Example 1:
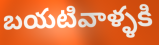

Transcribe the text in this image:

బయటివాళ్ళకి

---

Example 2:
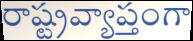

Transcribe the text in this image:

రాష్ట్రవ్యాప్తంగా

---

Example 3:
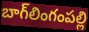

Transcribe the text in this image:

బాగ్‌లింగంపల్లి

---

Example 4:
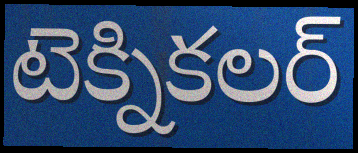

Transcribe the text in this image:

టెక్నికలర్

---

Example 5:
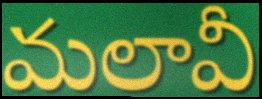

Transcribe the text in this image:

మలావీ